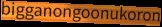
bigganongoonukoron